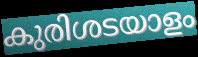
കുരിശടയാളം